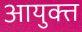
आयुक्त